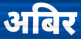
अबिर